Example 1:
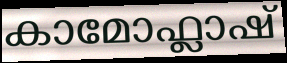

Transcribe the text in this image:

കാമോഫ്ലാഷ്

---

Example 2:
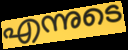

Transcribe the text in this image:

എന്നുടെ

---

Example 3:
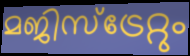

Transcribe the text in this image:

മജിസ്ട്രേറ്റും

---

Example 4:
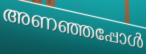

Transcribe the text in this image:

അണഞ്ഞപ്പോൾ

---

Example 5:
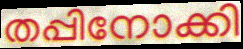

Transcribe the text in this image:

തപ്പിനോക്കി